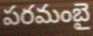
పరమంబై